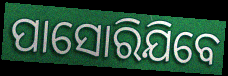
ପାସୋରିଯିବେ